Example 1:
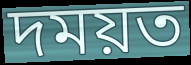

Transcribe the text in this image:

দময়ত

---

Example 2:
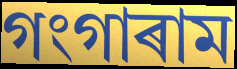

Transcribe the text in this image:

গংগাৰাম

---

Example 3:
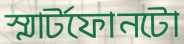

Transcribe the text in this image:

স্মাৰ্টফোনটো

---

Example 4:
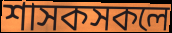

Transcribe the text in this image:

শাসকসকলে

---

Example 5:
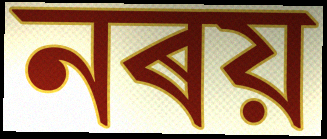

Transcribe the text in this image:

নৰয়